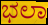
ಭಲಾ